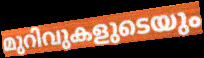
മുറിവുകളുടെയും